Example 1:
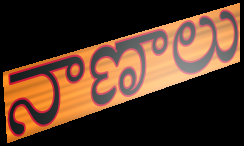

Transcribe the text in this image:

నాణాలు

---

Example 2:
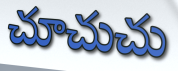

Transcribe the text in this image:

చూచుచు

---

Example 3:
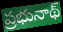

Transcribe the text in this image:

ప్రభునాథ్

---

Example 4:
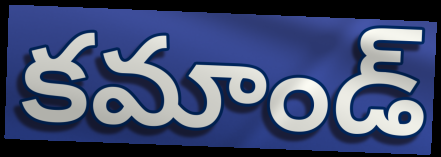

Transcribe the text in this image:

కమాండ్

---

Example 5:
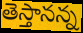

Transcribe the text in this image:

తెస్తానన్న